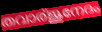
തവാര്ജുനേദം